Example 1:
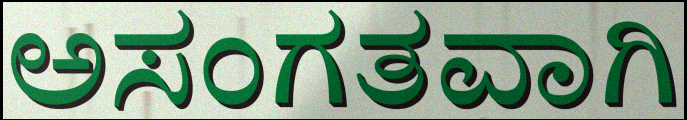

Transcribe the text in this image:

ಅಸಂಗತವಾಗಿ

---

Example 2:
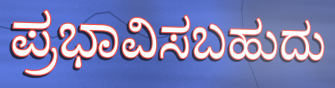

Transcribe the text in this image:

ಪ್ರಭಾವಿಸಬಹುದು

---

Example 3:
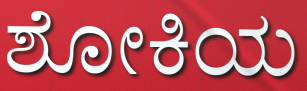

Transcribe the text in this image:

ಶೋಕಿಯ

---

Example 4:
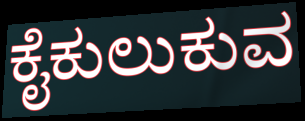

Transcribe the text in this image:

ಕೈಕುಲುಕುವ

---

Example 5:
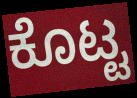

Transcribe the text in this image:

ಕೊಟ್ಟ